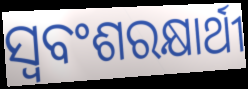
ସ୍ବବଂଶରକ୍ଷାର୍ଥୀ